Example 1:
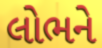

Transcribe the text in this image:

લોભને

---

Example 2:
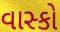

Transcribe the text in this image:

વાસ્કો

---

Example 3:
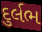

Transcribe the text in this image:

દુર્લભ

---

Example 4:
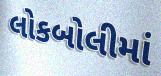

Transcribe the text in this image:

લોકબોલીમાં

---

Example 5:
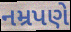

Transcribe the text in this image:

નમ્રપણે